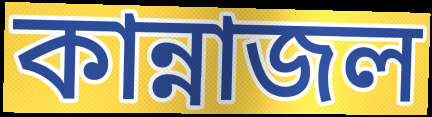
কান্নাজল